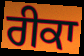
ਰੀਕਾ